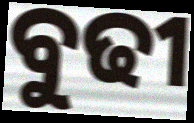
ବୁଢୀ